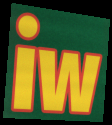
iw